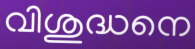
വിശുദ്ധനെ